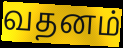
வதனம்